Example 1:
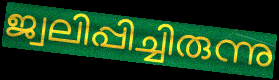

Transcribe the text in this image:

ജ്വലിപ്പിച്ചിരുന്നു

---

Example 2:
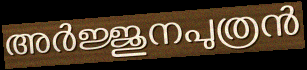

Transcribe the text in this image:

അർജ്ജുനപുത്രൻ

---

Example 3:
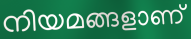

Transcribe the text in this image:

നിയമങ്ങളാണ്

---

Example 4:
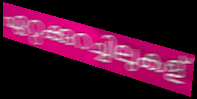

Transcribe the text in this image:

ഏറ്റക്കുറച്ചിലുകള്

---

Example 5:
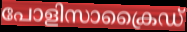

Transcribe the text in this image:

പോളിസാക്രൈഡ്